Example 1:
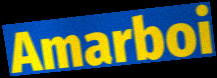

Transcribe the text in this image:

Amarboi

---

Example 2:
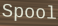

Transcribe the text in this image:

Spool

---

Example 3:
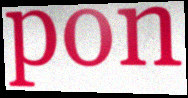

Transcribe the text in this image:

pon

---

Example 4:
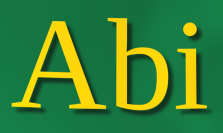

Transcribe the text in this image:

Abi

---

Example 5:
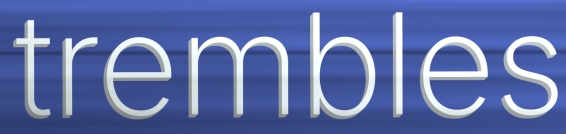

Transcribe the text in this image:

trembles